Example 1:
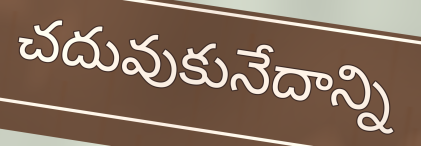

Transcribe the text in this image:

చదువుకునేదాన్ని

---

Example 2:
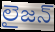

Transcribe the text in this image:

లైజన్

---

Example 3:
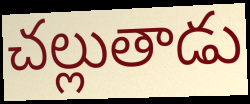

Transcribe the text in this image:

చల్లుతాడు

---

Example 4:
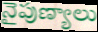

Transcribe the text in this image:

నైపుణ్యాలు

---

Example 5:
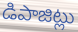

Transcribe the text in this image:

డిపాజిట్లు